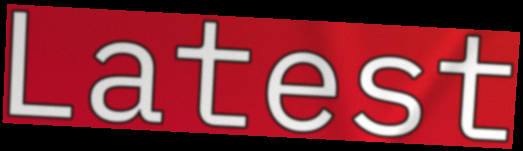
Latest